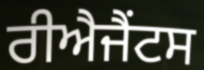
ਰੀਐਜੈਂਟਸ